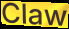
Claw